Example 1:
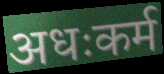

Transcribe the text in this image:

अधःकर्म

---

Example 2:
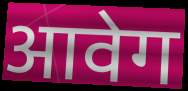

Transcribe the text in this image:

आवेग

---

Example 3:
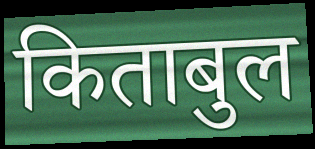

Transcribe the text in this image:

किताबुल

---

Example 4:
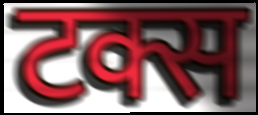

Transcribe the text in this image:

टक्स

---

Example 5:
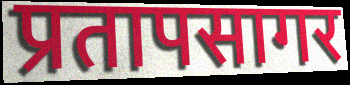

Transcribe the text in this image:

प्रतापसागर